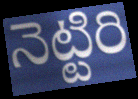
నెట్టిరి